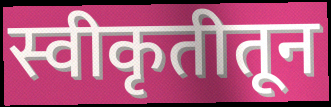
स्वीकृतीतून